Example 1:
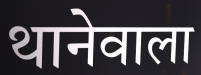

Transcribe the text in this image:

थानेवाला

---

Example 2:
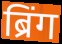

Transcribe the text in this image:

ब्रिंग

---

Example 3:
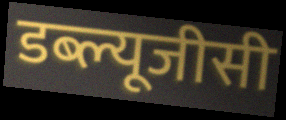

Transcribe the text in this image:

डब्ल्यूजीसी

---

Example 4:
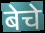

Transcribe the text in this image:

बेचे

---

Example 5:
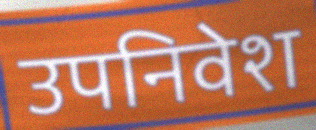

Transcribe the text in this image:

उपनिवेश